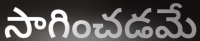
సాగించడమే